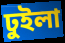
ঢুইলা